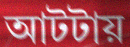
আটটায়